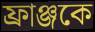
ফ্রাঞ্জকে